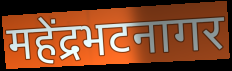
महेंद्रभटनागर